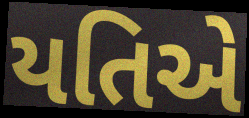
યતિએ